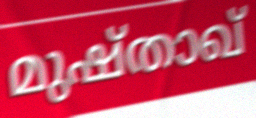
മുഷ്താഖ്